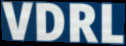
VDRL